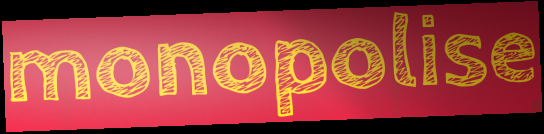
monopolise